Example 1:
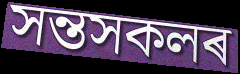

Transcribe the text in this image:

সন্তসকলৰ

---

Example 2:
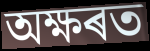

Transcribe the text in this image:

অক্ষৰত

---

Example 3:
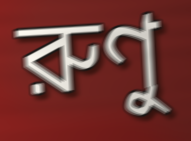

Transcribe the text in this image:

ৰুণু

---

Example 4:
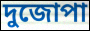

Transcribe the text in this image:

দুজোপা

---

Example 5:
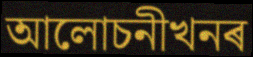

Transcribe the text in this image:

আলোচনীখনৰ